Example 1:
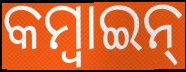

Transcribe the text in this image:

କମ୍ବାଇନ୍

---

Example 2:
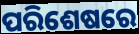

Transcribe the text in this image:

ପରିଶେଷରେ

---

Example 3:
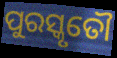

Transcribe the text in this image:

ପୁରସ୍କୃତୌ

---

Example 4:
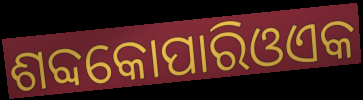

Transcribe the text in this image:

ଶବ୍ଦକୋପାରିଓଏକ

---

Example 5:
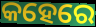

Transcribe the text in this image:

କହେରେ